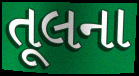
તૂલના